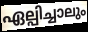
ഏല്പിച്ചാലും